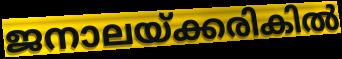
ജനാലയ്ക്കരികിൽ